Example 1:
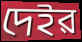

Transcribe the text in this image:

দেইৱ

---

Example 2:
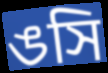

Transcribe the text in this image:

ঙসি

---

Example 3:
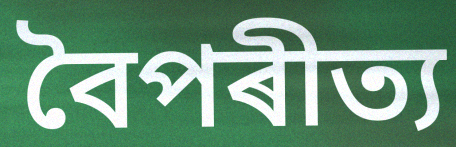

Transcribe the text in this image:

বৈপৰীত্য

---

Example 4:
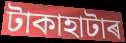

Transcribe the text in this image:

টাকাহাটাৰ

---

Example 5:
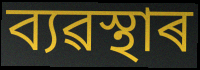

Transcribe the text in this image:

ব্যৱস্থাৰ